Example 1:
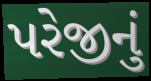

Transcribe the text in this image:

પરેજીનું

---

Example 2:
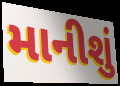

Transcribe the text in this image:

માનીશું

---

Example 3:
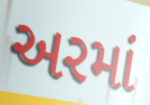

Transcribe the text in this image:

અરમાં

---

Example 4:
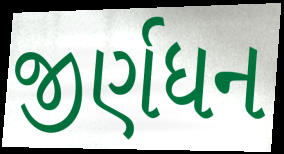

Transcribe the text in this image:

જીર્ણધન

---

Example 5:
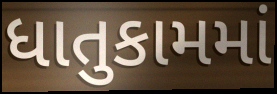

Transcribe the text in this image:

ધાતુકામમાં